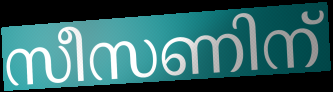
സീസണിന്